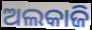
ଅଲକାଜି